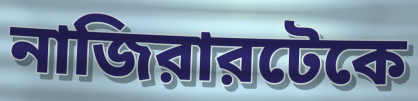
নাজিরারটেকে